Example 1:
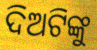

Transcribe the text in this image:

ଦିଅଟିଙ୍କୁ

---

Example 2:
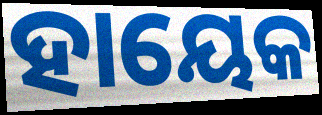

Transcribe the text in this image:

ହାୟେକ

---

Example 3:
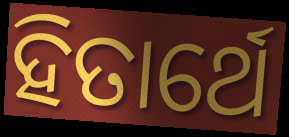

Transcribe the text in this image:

ହିତାର୍ଥେ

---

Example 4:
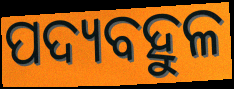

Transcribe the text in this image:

ପଦ୍ୟବହୁଳ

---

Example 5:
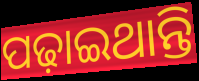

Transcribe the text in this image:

ପଢ଼ାଇଥାନ୍ତି